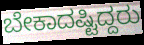
ಬೇಕಾದಷ್ಟಿದ್ದರು